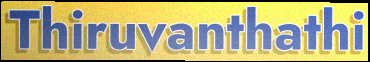
Thiruvanthathi